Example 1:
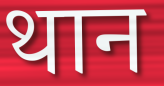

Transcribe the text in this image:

थान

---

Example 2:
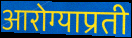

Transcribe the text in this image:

आरोग्याप्रती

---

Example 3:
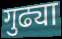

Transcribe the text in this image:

गुढ्या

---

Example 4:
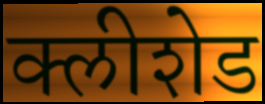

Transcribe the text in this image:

क्लीशेड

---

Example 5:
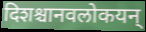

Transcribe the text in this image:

दिशश्चानवलोकयन्